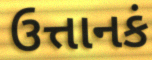
ઉત્તાનકં